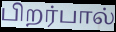
பிறர்பால்